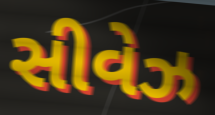
સીવેઝ